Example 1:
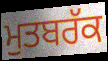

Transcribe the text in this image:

ਮੁਤਬਰੱਕ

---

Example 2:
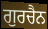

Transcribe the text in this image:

ਗੁਰਚੈਨ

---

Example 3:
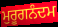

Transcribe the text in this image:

ਮੁਰੂਗਨੰਦਮ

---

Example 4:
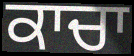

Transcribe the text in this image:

ਕਾਚਾ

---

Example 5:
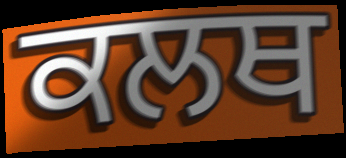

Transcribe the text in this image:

ਕਲਥ